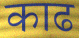
काढ